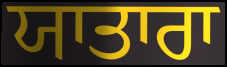
ਯਾਤਾਰਾ